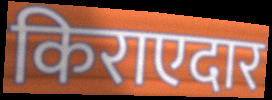
किराएदार